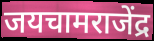
जयचामराजेंद्र